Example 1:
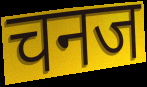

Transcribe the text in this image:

चनज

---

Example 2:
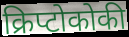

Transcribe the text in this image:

क्रिप्टोकोकी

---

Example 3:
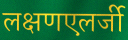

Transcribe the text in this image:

लक्षणएलर्जी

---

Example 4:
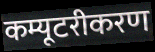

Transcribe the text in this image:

कम्यूटरीकरण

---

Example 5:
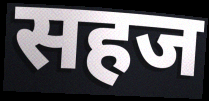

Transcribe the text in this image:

सहज